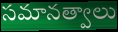
సమానత్వాలు